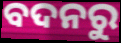
ବଦନରୁ